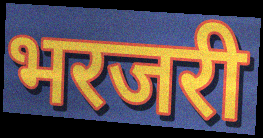
भरजरी